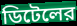
ডিটেলের